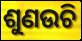
ଶୁଣଉଚି